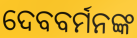
ଦେବବର୍ମନଙ୍କ